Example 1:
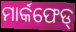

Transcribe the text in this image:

ମାର୍କଫେଡ୍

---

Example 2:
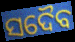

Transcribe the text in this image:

ସଦୈବ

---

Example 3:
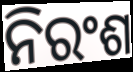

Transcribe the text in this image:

ନିରଂଶ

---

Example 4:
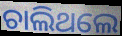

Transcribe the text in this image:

ଚାଲିଥଲେ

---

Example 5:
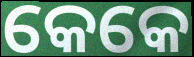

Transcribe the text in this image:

କେକେ